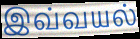
இவ்வயல்